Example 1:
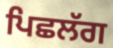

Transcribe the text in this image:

ਪਿਛਲੱਗ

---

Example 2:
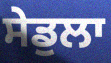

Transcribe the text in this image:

ਸੇਡੁਲਾ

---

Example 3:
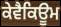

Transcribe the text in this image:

ਕੇਵੈਕਿਊਮ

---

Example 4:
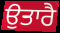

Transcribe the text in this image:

ਉਤਾਰੈ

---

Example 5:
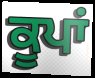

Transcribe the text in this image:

ਕੂਪਾਂ